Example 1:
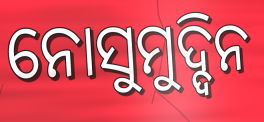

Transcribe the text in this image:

ନୋସୁମୁଦ୍ଦିନ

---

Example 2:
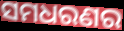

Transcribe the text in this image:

ସମଧରଣର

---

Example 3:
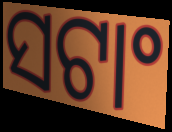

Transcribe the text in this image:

ସଟାଂ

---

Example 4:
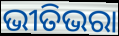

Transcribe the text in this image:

ଭୀତିଭରା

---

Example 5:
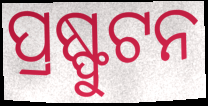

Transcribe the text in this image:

ପ୍ରଷ୍ଫୁଟନ